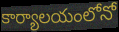
కార్యాలయంలోనో